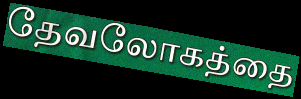
தேவலோகத்தை